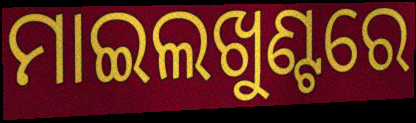
ମାଇଲଖୁଣ୍ଟରେ